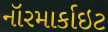
નૉરમાર્કાઇટ